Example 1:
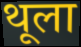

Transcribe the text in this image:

थूला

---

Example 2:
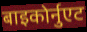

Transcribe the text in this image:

बाइकोर्नुएट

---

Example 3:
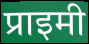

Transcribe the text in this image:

प्राइमी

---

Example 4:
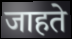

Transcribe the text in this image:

जाहते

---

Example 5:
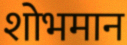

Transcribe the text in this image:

शोभमान